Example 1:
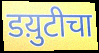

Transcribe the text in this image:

डय़ुटीचा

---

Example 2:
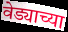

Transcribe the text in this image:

वेड्याच्या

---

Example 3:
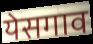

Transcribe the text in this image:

येसगाव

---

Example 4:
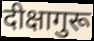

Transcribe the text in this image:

दीक्षागुरू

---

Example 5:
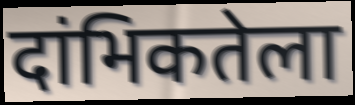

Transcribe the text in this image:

दांभिकतेला